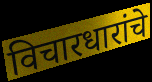
विचारधारांचे